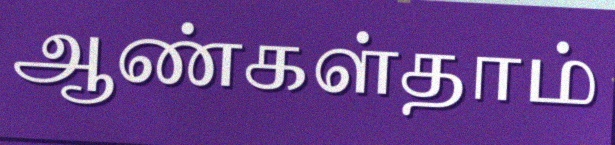
ஆண்கள்தாம்